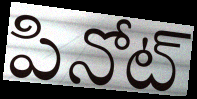
పినోట్